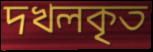
দখলকৃত